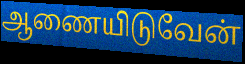
ஆணையிடுவேன்